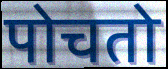
पोचतो